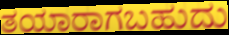
ತಯಾರಾಗಬಹುದು